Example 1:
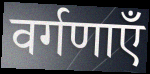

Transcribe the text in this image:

वर्गणाएँ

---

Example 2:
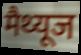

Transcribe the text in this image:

मैथ्‍यूज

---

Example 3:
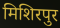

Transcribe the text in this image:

मिशिरपुर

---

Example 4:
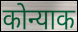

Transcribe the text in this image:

कोन्याक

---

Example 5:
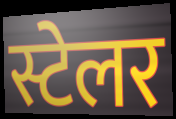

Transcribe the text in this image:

स्टेलर